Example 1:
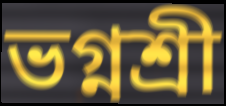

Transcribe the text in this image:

ভগ্নশ্রী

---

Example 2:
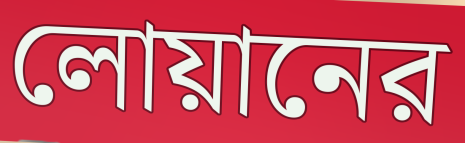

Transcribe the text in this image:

লোয়ানের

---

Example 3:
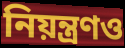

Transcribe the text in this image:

নিয়ন্ত্রণও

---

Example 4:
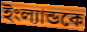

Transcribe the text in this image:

ইংল্যান্ডকে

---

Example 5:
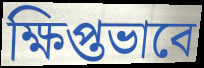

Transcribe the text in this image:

ক্ষিপ্তভাবে